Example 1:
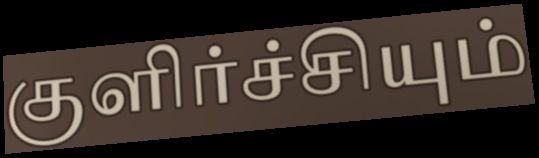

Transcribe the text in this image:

குளிர்ச்சியும்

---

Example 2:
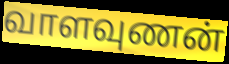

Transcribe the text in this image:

வாளவுணன்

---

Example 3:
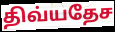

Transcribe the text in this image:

திவ்யதேச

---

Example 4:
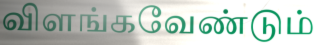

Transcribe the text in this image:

விளங்கவேண்டும்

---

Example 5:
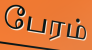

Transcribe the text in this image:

பேரம்